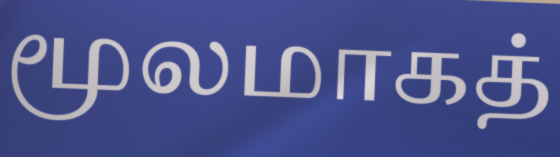
மூலமாகத்